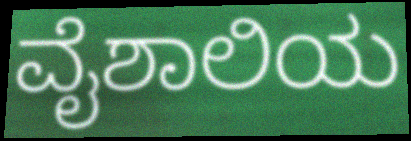
ವೈಶಾಲಿಯ